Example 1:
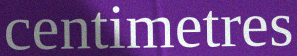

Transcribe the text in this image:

centimetres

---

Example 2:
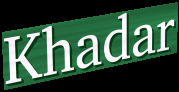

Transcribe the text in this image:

Khadar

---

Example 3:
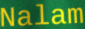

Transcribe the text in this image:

Nalam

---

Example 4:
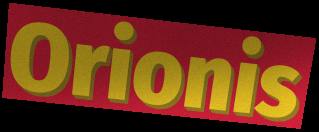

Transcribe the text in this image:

Orionis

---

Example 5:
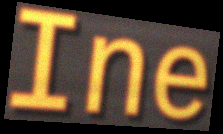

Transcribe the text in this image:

Ine